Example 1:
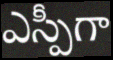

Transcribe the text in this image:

ఎస్పీగా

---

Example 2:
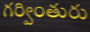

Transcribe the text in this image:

గర్వింతురు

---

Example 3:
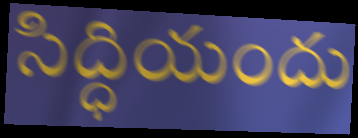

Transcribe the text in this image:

సిద్ధియందు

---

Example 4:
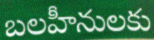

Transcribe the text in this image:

బలహీనులకు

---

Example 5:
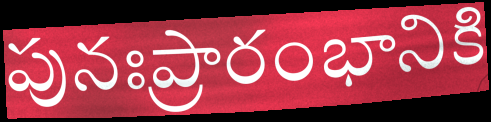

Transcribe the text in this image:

పునఃప్రారంభానికి